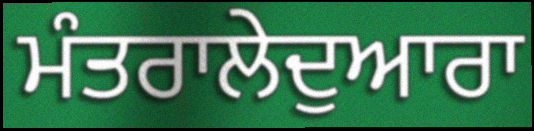
ਮੰਤਰਾਲੇਦੁਆਰਾ